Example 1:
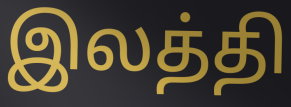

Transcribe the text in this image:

இலத்தி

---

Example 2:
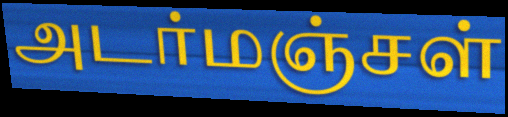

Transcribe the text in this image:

அடர்மஞ்சள்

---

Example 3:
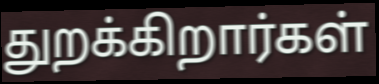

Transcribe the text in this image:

துறக்கிறார்கள்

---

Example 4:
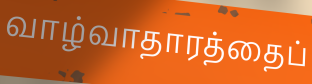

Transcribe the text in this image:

வாழ்வாதாரத்தைப்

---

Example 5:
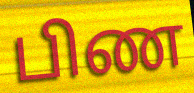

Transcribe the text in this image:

பிண